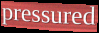
pressured